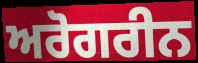
ਅਰੋਗਰੀਨ